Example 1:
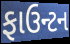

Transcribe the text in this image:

ફાઉન્ટન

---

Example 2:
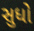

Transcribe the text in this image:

સુધો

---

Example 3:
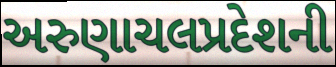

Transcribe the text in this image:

અરુણાચલપ્રદેશની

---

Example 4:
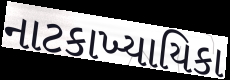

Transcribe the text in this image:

નાટકાખ્યાયિકા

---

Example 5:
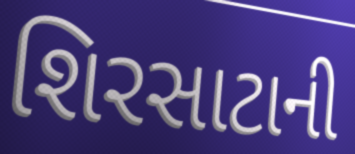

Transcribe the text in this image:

શિરસાટાની